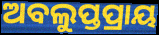
ଅବଲୁପ୍ତପ୍ରାୟ